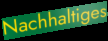
Nachhaltiges